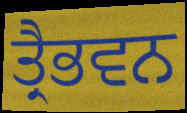
ਤ੍ਰੈਭਵਨ